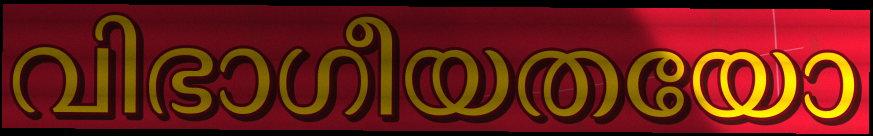
വിഭാഗീയതയോ